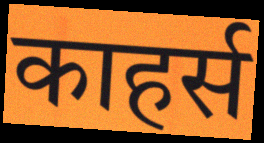
काहर्स